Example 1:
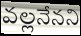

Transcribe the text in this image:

వల్లనేనని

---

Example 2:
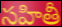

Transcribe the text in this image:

సహితీ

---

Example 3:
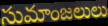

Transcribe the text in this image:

సుమాంజలులు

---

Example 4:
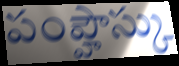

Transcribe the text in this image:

పంప్హౌస్కు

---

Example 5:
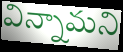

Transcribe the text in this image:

విన్నామని